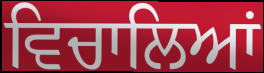
ਵਿਚਾਲਿਆਂ